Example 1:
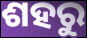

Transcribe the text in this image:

ଶହରୁ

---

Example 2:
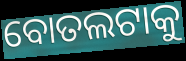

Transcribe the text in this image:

ବୋତଲଟାକୁ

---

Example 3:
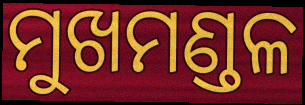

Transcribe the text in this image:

ମୁଖମଣ୍ଡଳ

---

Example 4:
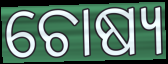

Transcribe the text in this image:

ଚୋଷ୍ୟ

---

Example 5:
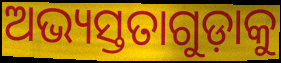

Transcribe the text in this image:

ଅଭ୍ୟସ୍ତତାଗୁଡ଼ାକୁ